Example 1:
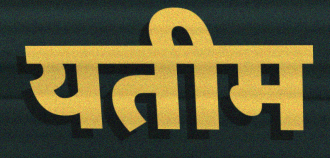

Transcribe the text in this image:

यतीम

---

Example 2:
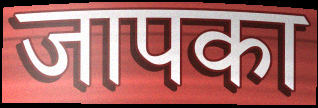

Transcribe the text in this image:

जापका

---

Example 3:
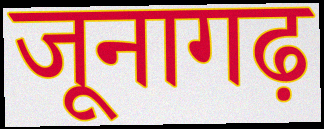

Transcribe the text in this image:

जूनागढ़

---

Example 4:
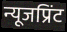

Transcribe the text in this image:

न्यूजप्रिंट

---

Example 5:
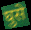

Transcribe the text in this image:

घुसे